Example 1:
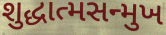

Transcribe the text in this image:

શુદ્ધાત્મસન્મુખ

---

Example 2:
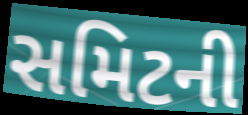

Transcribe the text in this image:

સમિટની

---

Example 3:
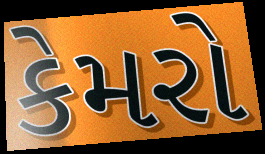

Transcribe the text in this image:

કેમરો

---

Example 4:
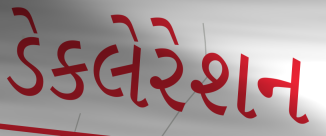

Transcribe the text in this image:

ડેકલેરેશન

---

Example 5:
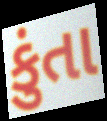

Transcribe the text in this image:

કુંતા